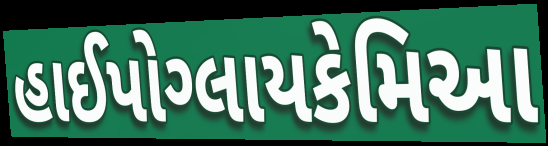
હાઈપોગ્લાયકેમિઆ